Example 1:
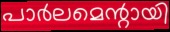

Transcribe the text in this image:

പാർലമെന്റായി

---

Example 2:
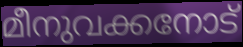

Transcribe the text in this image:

മീനുവക്കനോട്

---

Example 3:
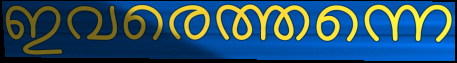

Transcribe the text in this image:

ഇവരെത്തന്നെ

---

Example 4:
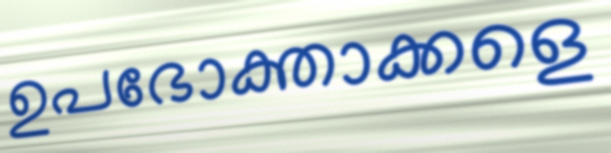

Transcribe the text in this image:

ഉപഭോക്താക്കളെ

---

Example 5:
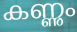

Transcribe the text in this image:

കണ്ണും